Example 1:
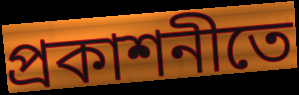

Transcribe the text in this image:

প্রকাশনীতে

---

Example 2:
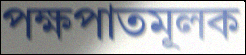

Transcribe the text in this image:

পক্ষপাতমূলক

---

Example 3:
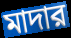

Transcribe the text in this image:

মাদার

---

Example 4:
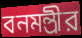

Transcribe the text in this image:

বনমন্ত্রীর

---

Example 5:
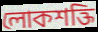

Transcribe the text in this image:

লোকশক্তি